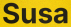
Susa